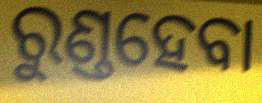
ରୁଣ୍ଡହେବା